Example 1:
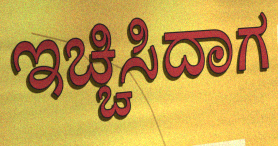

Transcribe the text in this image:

ಇಚ್ಚಿಸಿದಾಗ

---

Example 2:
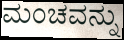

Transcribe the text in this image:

ಮಂಚವನ್ನು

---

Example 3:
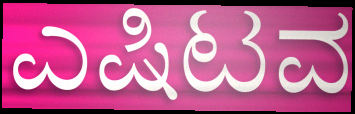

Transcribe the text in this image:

ಎಷಿಟವ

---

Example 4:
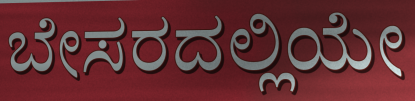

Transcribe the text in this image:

ಬೇಸರದಲ್ಲಿಯೇ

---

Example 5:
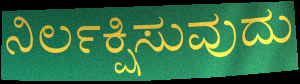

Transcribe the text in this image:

ನಿರ್ಲಕ್ಷಿಸುವುದು